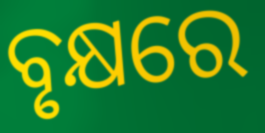
ବୃକ୍ଷରେ